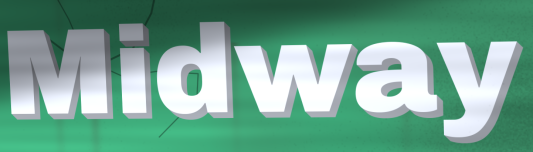
Midway